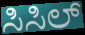
ಸಿಸಿಲ್